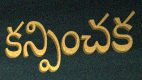
కన్పించక